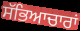
ਸੱਭਿਆਚਾਰਾਂ